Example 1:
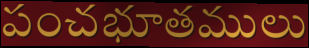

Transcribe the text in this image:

పంచభూతములు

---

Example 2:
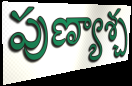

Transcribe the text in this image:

పుణ్యాశ్చ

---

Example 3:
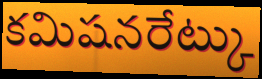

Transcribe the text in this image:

కమిషనరేట్కు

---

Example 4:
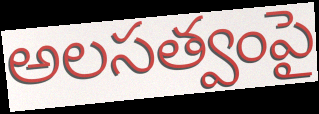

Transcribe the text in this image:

అలసత్వంపై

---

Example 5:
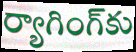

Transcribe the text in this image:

ర్యాగింగ్‌కు